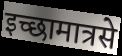
इच्छामात्रसे